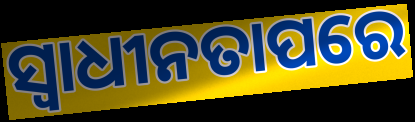
ସ୍ୱାଧୀନତାପରେ